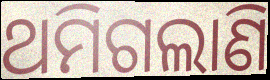
ଥମିଗଲାଣି